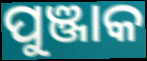
ପୁଞ୍ଜାକ